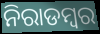
ନିରାଡମ୍ଵର